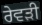
ਰੇਵੜੀ